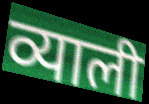
व्याली